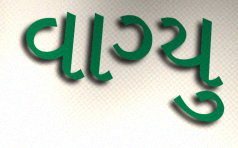
વાગ્યુ